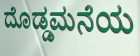
ದೊಡ್ಡಮನೆಯ